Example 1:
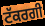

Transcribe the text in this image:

ਟੱਕਰਗੀ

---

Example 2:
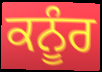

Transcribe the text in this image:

ਕਨੂੰਰ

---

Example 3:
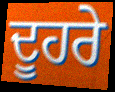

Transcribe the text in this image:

ਦੂਹਰੇ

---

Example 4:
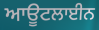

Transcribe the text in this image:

ਆਊਟਲਾਈਨ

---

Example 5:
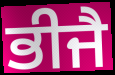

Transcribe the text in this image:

ਭੀਜੈ